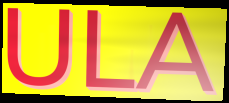
ULA